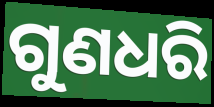
ଗୁଣଧରି